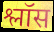
श्लॉस